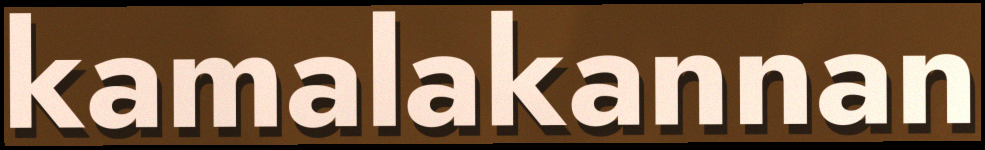
kamalakannan